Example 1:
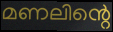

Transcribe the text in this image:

മണലിന്റെ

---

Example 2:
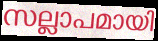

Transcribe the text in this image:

സല്ലാപമായി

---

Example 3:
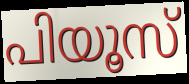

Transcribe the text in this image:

പിയൂസ്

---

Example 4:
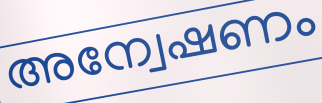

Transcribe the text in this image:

അന്വേഷണം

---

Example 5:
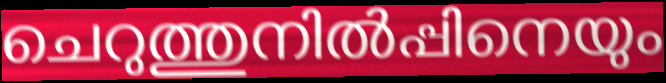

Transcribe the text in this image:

ചെറുത്തുനിൽപ്പിനെയും